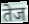
तेज